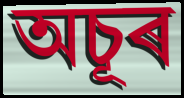
অচূৰ